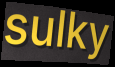
sulky